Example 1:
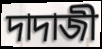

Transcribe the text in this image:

দাদাজী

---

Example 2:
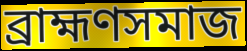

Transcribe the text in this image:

ব্রাহ্মণসমাজ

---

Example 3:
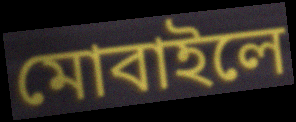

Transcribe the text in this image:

মোবাইলে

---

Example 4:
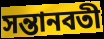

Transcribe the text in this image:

সন্তানবতী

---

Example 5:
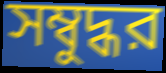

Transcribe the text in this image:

সম্বুদ্ধর